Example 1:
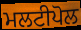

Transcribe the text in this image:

ਮਲਟੀਪੋਲ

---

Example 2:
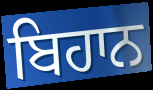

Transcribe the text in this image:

ਬਿਹਾਨ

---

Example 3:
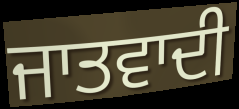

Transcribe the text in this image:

ਜਾਤਵਾਦੀ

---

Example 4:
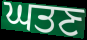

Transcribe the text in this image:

ਘਤਣ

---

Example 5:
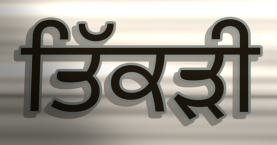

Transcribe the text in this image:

ਤਿੱਕੜੀ